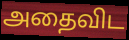
அதைவிட